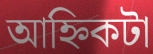
আহ্নিকটা